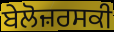
ਬੇਲੋਜ਼ਰਸਕੀ